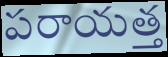
పరాయత్త